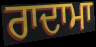
ਰਾਦਾਮਾ